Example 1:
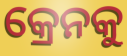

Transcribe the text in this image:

କ୍ରେନକୁ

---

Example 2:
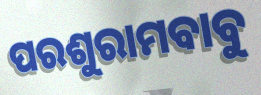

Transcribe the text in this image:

ପରଶୁରାମବାବୁ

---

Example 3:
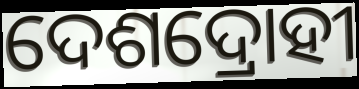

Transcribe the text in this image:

ଦେଶଦ୍ରୋହୀ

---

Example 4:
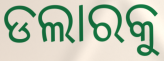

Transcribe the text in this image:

ଡଲାରକୁ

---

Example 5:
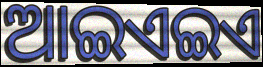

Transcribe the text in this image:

ଆଇଏଇଏ